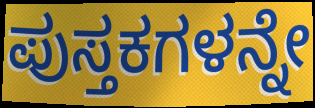
ಪುಸ್ತಕಗಳನ್ನೇ